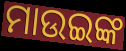
ମାଉଇଙ୍କ